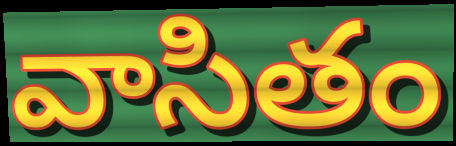
వాసితం